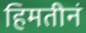
हिमतीनं